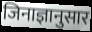
जिनाज्ञानुसार